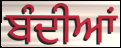
ਬੰਦੀਆਂ